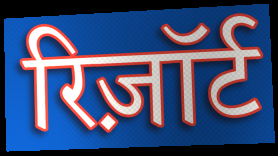
रिज़ॉर्ट